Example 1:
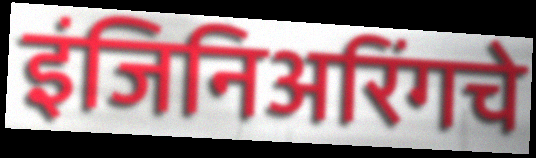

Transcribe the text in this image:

इंजिनिअरिंगचे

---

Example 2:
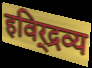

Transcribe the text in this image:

हविर्द्रव्य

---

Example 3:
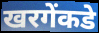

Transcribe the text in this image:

खरगेंकडे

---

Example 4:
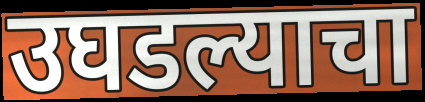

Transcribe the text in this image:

उघडल्याचा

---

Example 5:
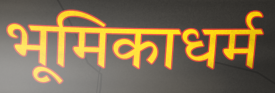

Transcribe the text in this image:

भूमिकाधर्म